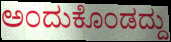
ಅಂದುಕೊಂಡದ್ದು